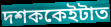
দশককেইটাত